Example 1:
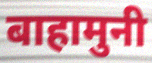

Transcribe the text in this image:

बाहामुनी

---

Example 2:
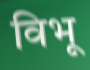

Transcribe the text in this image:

विभू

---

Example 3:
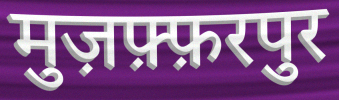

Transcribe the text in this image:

मुज़फ़्फ़रपुर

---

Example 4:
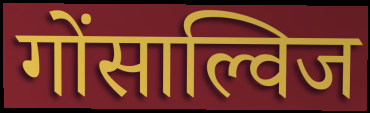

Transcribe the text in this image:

गोंसाल्विज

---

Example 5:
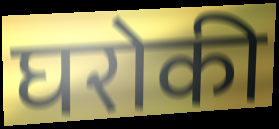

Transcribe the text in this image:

घरोकी